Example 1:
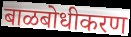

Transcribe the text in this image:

बाळबोधीकरण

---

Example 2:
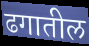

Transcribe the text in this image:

ढगातील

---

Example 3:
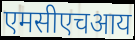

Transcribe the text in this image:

एमसीएचआय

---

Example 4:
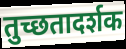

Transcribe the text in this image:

तुच्छतादर्शक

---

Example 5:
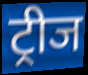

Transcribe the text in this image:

ट्रीज